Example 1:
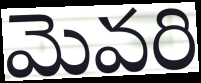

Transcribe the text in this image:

మెవరి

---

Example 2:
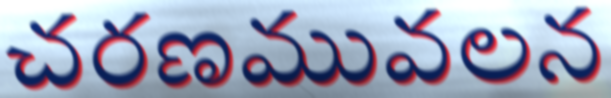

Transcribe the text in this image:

చరణమువలన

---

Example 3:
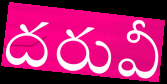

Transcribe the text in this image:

దరువీ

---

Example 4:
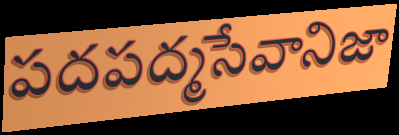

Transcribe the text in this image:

పదపద్మసేవానిజా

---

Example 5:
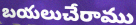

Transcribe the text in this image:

బయలుచేరాము